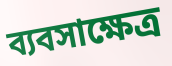
ব্যবসাক্ষেত্র